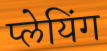
प्लेयिंग